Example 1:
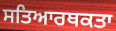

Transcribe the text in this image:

ਸਤਿਆਰਥਕਤਾ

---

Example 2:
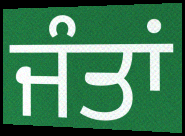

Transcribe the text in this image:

ਜੰਤਾਂ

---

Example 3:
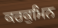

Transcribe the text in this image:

ਕਰਕੁਮਿਨ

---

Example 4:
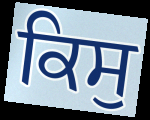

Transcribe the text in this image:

ਕਿਸੁ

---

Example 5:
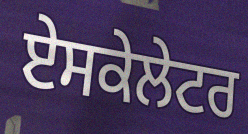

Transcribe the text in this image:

ਏਸਕੇਲੇਟਰ